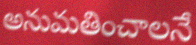
అనుమతించాలనే